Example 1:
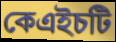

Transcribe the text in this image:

কেএইচটি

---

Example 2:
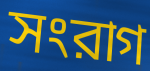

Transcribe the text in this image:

সংরাগ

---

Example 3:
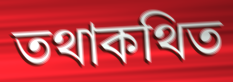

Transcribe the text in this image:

তথাকথিত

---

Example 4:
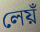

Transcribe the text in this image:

লেয়ঁ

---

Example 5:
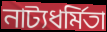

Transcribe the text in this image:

নাট্যধর্মিতা